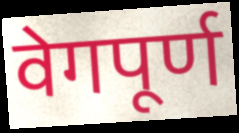
वेगपूर्ण